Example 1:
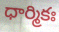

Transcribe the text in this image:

ధార్మికః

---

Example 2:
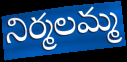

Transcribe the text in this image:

నిర్మలమ్మ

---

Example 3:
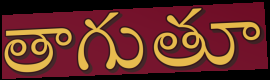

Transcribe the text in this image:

తాగుతూ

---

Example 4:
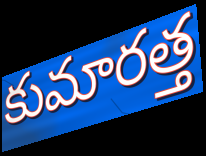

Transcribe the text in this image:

కుమారత్త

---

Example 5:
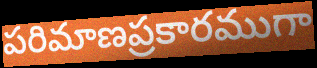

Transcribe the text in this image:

పరిమాణప్రకారముగా